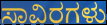
ಸಾವಿರಗಳು